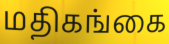
மதிகங்கை